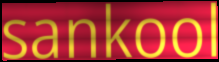
sankool